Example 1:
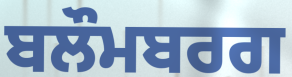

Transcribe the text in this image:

ਬਲੌਮਬਰਗ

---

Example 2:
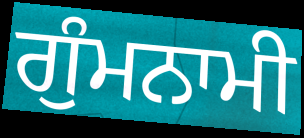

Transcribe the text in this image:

ਗੁੰਮਨਾਮੀ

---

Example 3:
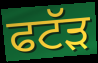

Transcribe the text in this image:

ਫਟੱੜ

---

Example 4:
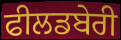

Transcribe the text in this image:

ਫੀਲਡਬੇਰੀ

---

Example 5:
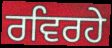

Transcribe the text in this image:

ਰਵਿਰਹੇ